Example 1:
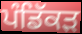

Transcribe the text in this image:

ਪੰਡਿੱਕੜ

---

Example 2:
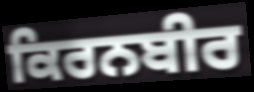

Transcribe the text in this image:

ਕਿਰਨਬੀਰ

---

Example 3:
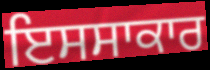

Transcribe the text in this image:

ਇਸਸਾਕਾਰ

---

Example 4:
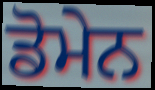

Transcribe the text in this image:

ਡੋਮੇਨ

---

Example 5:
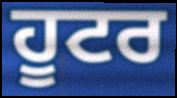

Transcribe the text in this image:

ਹੂਟਰ